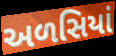
અળસિયાં